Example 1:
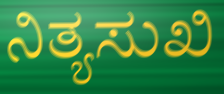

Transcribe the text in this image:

ನಿತ್ಯಸುಖಿ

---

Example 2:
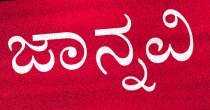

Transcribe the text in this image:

ಜಾನ್ನವಿ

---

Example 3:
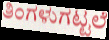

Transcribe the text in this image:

ತಿಂಗಳುಗಟ್ಟಲೆ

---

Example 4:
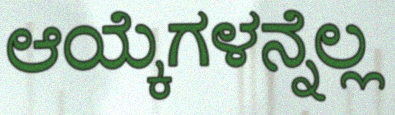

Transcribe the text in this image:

ಆಯ್ಕೆಗಳನ್ನೆಲ್ಲ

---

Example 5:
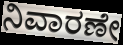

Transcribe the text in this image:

ನಿವಾರಣೇ